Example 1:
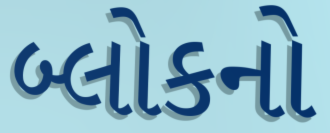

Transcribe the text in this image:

બ્લોકનો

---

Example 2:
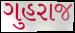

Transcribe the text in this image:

ગુહરાજ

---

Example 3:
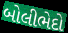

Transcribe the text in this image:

બોલીભેદો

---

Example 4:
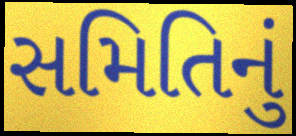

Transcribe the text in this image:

સમિતિનું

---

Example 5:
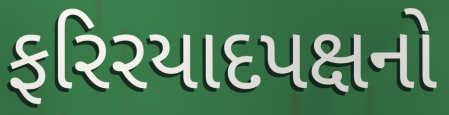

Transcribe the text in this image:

ફરિરયાદપક્ષનો